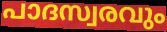
പാദസ്വരവും